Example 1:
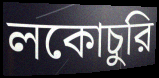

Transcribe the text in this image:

লকোচুরি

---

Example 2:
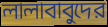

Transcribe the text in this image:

লালাবাবুদের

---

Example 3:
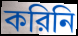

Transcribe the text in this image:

করিনি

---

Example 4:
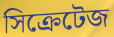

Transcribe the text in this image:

সিক্রেটেজ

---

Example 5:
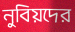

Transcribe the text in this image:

নুবিয়দের